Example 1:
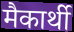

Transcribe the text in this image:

मैकार्थी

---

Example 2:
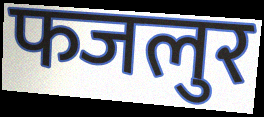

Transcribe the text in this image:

फजलुर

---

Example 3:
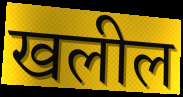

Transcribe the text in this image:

खलील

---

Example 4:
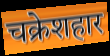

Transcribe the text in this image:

चक्रेशहार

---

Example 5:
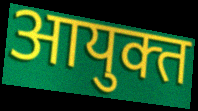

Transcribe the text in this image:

आयुक्‍त